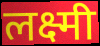
लक्ष्मी